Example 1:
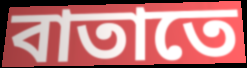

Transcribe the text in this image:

বাতাতে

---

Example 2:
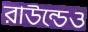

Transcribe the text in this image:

রাউন্ডেও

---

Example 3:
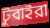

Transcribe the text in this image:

টুবাইরা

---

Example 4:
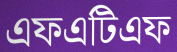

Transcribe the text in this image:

এফএটিএফ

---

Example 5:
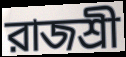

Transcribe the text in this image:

রাজশ্রী